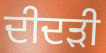
ਦੀਦੜੀ